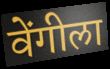
वेंगीला